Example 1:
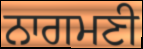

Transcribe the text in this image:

ਨਾਗਮਣੀ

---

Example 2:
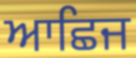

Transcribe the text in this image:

ਆਛਿਜ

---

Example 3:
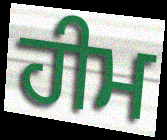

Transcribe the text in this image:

ਹੀਮ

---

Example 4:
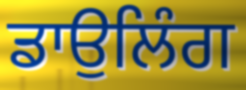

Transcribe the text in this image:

ਡਾਉਲਿੰਗ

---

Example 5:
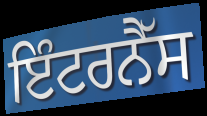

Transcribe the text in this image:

ਇੰਟਰਨੈੱਸ